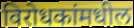
विरोधकांमधील